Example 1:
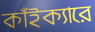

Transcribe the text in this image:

কাঁইক্যারে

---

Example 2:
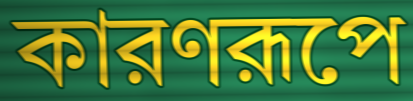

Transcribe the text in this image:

কারণরূপে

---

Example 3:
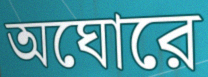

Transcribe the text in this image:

অঘোরে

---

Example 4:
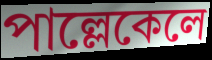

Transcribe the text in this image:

পাল্লেকেলে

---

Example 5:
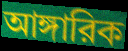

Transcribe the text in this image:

আঙ্গারিক